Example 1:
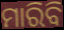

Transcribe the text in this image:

ମାରିବି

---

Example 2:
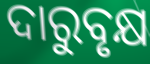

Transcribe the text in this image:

ଦାରୁବୃକ୍ଷ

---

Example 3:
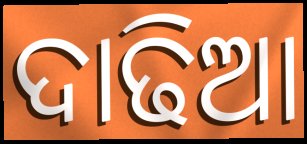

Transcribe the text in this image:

ଦାଢିଆ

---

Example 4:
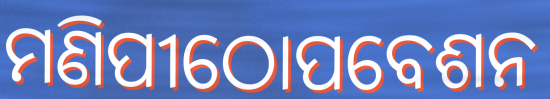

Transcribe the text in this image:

ମଣିପୀଠୋପବେଶନ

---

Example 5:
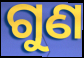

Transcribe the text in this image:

ଗୁଣ